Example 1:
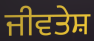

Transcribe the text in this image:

ਜੀਵਤੇਸ਼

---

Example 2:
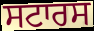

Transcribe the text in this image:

ਸਟਾਰਸ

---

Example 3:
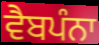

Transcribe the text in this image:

ਵੈਬਪੰਨਾ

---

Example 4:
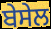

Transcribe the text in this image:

ਬੇਸੇਲ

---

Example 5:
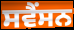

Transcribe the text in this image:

ਸਵੈਂਸਨ